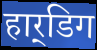
हार्डिग